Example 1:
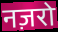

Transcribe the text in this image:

नज़रो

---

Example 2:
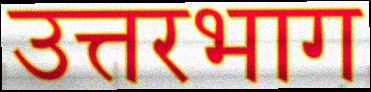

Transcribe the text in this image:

उत्तरभाग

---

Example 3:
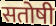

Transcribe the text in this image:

सतोषी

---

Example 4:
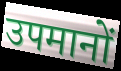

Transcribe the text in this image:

उपमानों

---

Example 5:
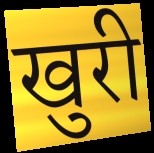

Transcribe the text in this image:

खुरी